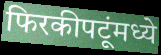
फिरकीपटूंमध्ये